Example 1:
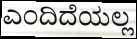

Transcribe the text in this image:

ಎಂದಿದೆಯಲ್ಲ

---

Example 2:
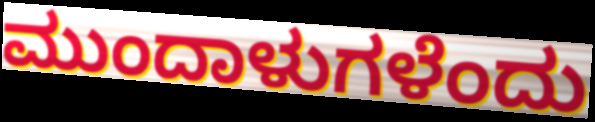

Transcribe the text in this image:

ಮುಂದಾಳುಗಳೆಂದು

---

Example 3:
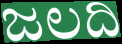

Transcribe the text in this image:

ಜಲದಿ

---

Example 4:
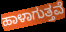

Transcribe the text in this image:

ಹಾಳಾಗುತ್ತವೆ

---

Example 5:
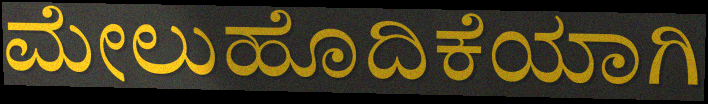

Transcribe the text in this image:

ಮೇಲುಹೊದಿಕೆಯಾಗಿ